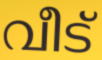
വീട്